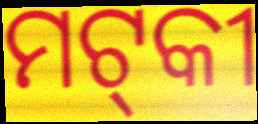
ମଟ୍‌କୀ